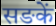
सङकें